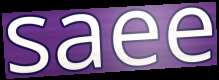
saee